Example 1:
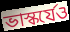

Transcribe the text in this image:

ভাস্কর্যেও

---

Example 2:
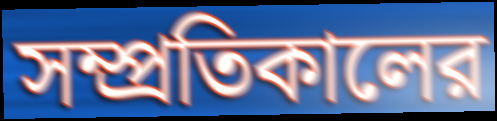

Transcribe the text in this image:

সম্প্রতিকালের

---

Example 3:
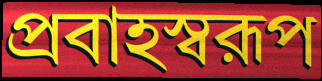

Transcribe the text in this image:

প্রবাহস্বরূপ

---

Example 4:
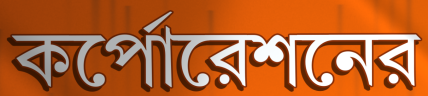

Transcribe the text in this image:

কর্পোরেশনের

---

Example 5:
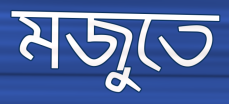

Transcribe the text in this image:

মজুতে